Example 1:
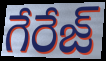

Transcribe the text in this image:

గేరేజ్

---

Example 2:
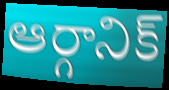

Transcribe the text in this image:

ఆర్గానిక్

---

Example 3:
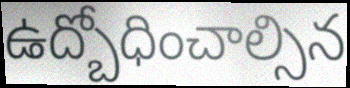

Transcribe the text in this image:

ఉద్బోధించాల్సిన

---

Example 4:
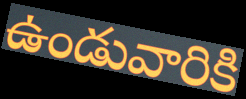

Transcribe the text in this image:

ఉండువారికి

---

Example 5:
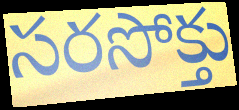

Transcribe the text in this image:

సరసోక్తు